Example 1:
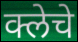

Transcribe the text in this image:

क्लेचे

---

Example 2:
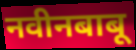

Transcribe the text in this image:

नवीनबाबू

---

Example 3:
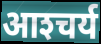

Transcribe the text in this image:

आश्‍चर्य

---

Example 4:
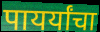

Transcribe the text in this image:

पायर्यांचा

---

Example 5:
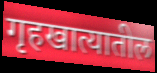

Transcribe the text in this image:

गृहखात्यातील